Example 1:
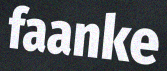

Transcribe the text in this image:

faanke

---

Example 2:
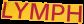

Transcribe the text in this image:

LYMPH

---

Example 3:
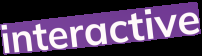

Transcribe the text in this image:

interactive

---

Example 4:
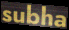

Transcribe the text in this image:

subha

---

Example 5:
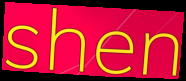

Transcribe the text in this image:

shen